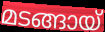
മടങ്ങായ്